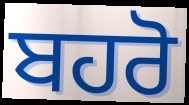
ਬਹਰੋ